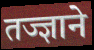
तज्ज्ञाने